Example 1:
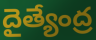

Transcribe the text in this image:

దైత్యేంద్ర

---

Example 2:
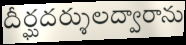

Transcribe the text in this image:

దీర్ఘదర్శులద్వారాను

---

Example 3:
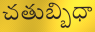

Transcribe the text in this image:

చతుబ్బిధా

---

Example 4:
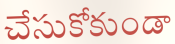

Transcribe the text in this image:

చేసుకోకుండా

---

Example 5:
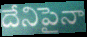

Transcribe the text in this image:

దేనిపైనా